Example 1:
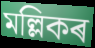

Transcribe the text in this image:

মল্লিকৰ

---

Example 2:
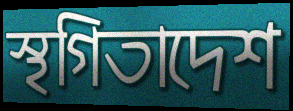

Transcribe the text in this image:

স্থগিতাদেশ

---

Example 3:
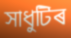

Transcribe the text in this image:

সাধুটিৰ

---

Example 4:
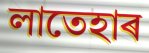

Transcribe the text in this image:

লাতেহাৰ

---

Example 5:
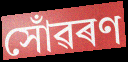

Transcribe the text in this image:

সোঁৱৰণ